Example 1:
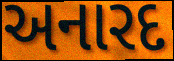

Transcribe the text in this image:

અનારદ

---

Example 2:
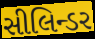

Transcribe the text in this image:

સીલિન્ડર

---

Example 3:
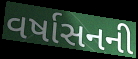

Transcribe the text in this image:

વર્ષાસનની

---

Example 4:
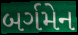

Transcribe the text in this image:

બર્ગમેન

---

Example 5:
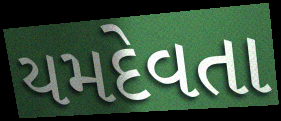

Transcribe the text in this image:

યમદેવતા